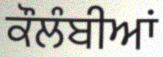
ਕੌਲੰਬੀਆਂ